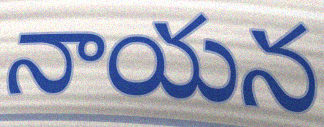
నాయన